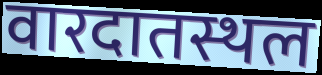
वारदातस्थल